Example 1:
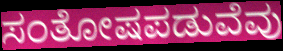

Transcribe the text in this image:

ಸಂತೋಷಪಡುವೆವು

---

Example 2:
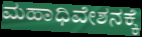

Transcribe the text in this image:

ಮಹಾಧಿವೇಶನಕ್ಕೆ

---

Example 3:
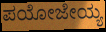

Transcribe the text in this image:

ಪಯೋಜೇಯ್ಯ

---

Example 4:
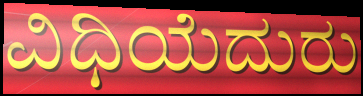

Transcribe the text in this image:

ವಿಧಿಯೆದುರು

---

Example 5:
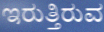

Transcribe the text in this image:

ಇರುತ್ತಿರುವ